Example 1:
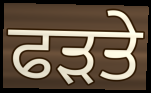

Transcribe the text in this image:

ਫੜਤੇ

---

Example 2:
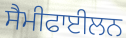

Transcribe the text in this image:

ਸੈਮੀਫਾਈਲਨ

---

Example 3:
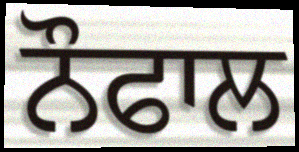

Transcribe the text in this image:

ਨੌਫਾਲ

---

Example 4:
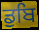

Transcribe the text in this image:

ਡੁਬਿ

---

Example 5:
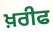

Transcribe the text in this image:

ਖ਼ਰੀਫ